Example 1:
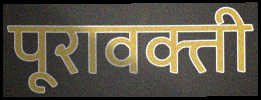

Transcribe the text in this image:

पूरावक्ती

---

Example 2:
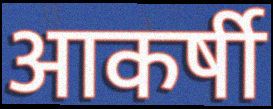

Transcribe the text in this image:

आकर्षी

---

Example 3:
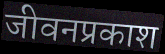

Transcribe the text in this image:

जीवनप्रकाश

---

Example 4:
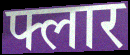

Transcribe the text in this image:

फ्लार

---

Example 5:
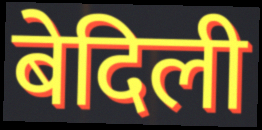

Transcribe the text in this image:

बेदिली